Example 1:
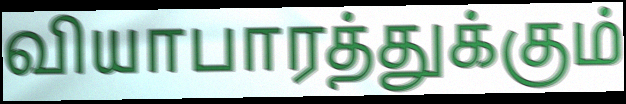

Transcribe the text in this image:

வியாபாரத்துக்கும்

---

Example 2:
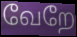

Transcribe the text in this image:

வேறே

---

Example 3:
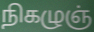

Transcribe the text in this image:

நிகழுஞ்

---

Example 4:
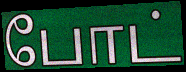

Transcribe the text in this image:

போட்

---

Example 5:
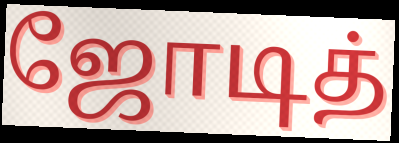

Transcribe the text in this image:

ஜோடித்